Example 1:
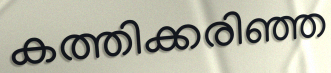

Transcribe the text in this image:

കത്തിക്കരിഞ്ഞ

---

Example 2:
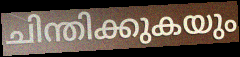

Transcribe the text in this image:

ചിന്തിക്കുകയും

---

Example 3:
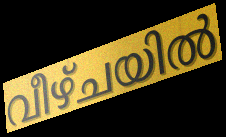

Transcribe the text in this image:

വീഴ്ചയിൽ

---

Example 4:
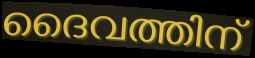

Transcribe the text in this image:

ദൈവത്തിന്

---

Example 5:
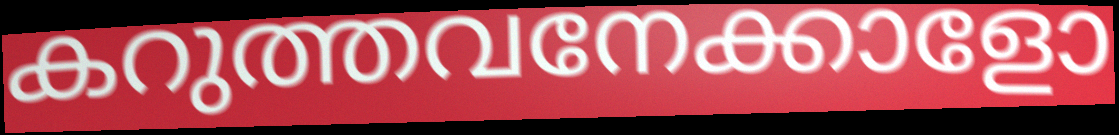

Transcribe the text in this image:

കറുത്തവനേക്കാളോ